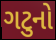
ગટુનો